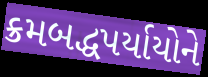
ક્રમબદ્ધપર્યાયોને